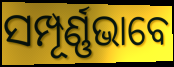
ସମ୍ପୂର୍ଣ୍ଣଭାବେ